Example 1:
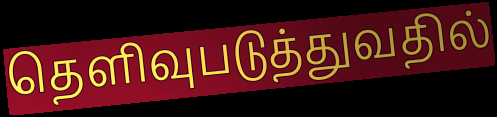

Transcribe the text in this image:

தெளிவுபடுத்துவதில்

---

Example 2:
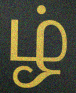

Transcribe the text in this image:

ழ்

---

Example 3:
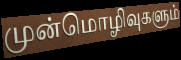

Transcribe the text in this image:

முன்மொழிவுகளும்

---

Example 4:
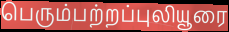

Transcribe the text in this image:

பெரும்பற்றப்புலியூரை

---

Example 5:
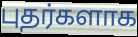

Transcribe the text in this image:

புதர்களாக